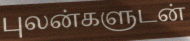
புலன்களுடன்